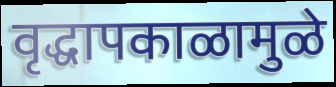
वृद्धापकाळामुळे